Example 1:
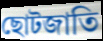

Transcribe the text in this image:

ছোটজাতি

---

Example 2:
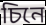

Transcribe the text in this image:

চিনে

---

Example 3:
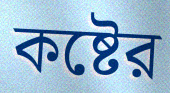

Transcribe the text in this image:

কষ্টের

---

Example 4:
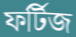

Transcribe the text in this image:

ফর্টিজ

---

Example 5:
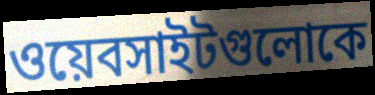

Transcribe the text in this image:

ওয়েবসাইটগুলোকে